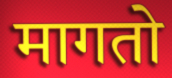
मागतो